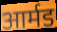
आर्मड